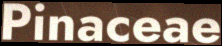
Pinaceae